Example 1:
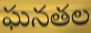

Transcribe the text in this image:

ఘనతల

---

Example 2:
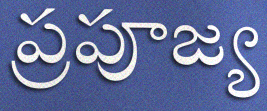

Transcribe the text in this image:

ప్రపూజ్య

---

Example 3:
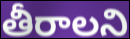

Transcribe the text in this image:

తీరాలని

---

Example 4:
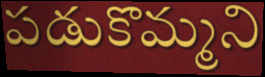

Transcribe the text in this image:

పడుకొమ్మని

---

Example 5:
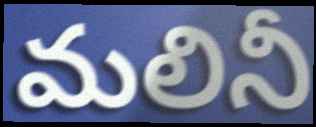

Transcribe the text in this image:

మలినీ